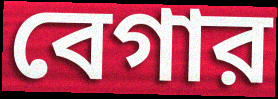
বেগার